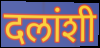
दलांशी